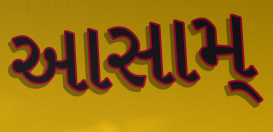
આસામ્